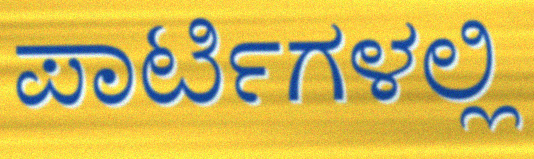
ಪಾರ್ಟಿಗಳಲ್ಲಿ